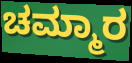
ಚಮ್ಮಾರ